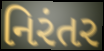
નિરંતર